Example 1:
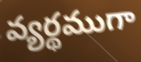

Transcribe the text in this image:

వ్యర్థముగా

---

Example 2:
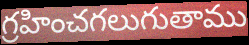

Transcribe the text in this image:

గ్రహించగలుగుతాము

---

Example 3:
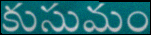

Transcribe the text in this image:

కుసుమం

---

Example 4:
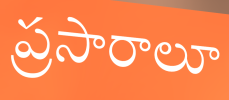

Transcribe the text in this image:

ప్రసారాలూ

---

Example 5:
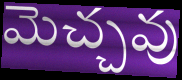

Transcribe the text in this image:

మెచ్చవు